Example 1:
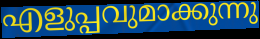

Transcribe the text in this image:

എളുപ്പവുമാക്കുന്നു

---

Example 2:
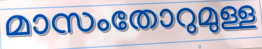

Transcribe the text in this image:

മാസംതോറുമുള്ള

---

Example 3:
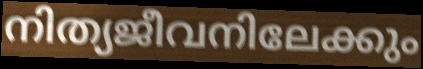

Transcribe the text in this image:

നിത്യജീവനിലേക്കും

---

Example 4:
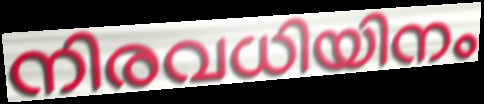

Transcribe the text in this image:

നിരവധിയിനം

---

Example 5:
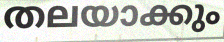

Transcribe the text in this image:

തലയാക്കും